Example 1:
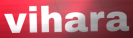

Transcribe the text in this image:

vihara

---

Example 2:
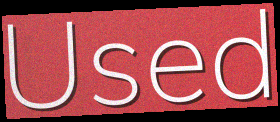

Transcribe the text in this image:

Used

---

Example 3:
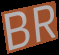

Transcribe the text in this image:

BR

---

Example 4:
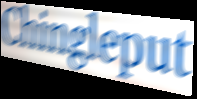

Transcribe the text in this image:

Chingleput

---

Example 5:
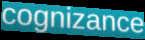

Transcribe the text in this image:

cognizance